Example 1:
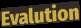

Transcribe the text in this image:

Evalution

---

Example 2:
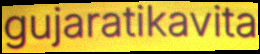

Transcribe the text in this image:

gujaratikavita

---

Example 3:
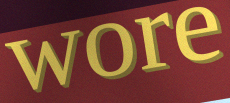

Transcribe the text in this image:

wore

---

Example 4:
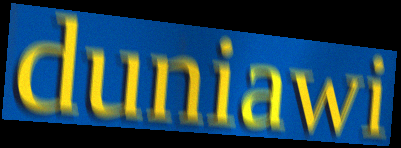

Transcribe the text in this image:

duniawi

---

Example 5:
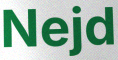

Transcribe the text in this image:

Nejd